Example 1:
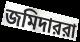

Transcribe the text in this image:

জমিদাররা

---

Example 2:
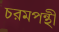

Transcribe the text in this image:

চরমপন্থী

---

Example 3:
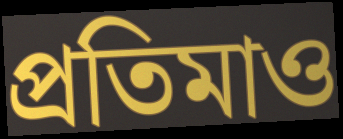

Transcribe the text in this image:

প্রতিমাও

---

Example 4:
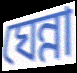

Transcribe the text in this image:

ঘেন্না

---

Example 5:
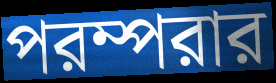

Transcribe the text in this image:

পরম্পরার